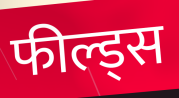
फील्ड्स